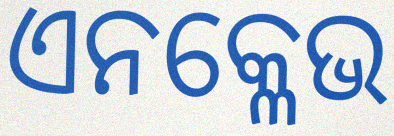
ଏନକ୍ଳେଭ